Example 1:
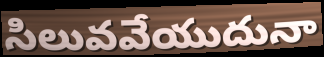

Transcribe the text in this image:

సిలువవేయుదునా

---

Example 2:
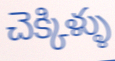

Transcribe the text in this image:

చెక్కిళ్ళు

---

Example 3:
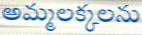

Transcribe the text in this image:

అమ్మలక్కలను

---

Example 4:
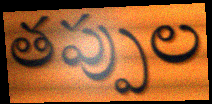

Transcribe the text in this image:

తప్పుల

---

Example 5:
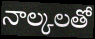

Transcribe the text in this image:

నాల్కలతో